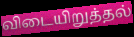
விடையிறுத்தல்